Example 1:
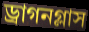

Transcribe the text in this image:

ড্রাগনগ্লাস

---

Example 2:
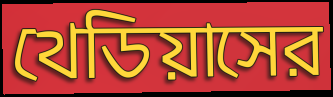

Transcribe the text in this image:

থেডিয়াসের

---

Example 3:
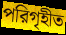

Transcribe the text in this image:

পরিগৃহীত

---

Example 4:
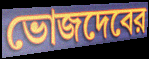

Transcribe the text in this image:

ভোজদেবের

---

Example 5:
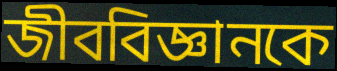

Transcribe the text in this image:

জীববিজ্ঞানকে